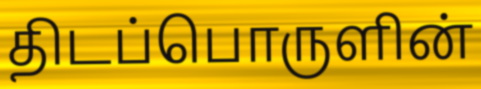
திடப்பொருளின்